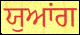
ਯੁਆਂਗ